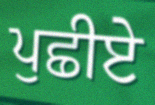
ਪੁਛੀਏ